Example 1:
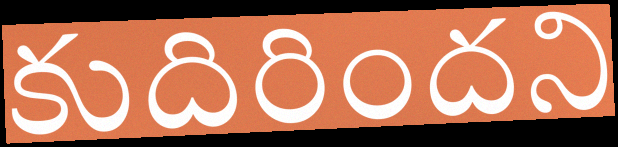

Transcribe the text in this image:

కుదిరిందని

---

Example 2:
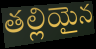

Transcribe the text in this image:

తల్లియైన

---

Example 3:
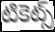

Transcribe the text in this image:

టికెట్స్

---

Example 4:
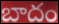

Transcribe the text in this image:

బాదం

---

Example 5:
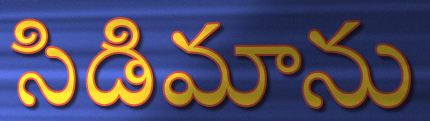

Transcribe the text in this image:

సిడిమాను